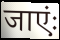
जाएंः